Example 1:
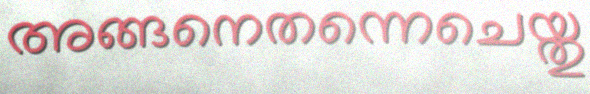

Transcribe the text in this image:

അങ്ങനെതന്നെചെയ്തു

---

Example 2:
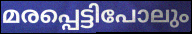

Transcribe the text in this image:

മരപ്പെട്ടിപോലും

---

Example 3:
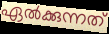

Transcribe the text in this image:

ഏൽക്കുന്നത്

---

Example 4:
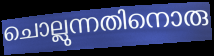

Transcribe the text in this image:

ചൊല്ലുന്നതിനൊരു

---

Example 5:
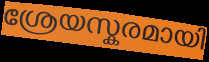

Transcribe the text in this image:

ശ്രേയസ്കരമായി